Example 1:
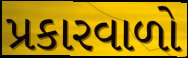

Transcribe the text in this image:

પ્રકારવાળો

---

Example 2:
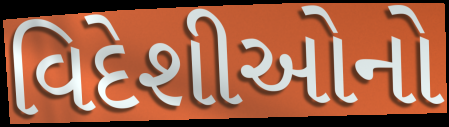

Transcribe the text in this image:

વિદેશીઓનો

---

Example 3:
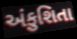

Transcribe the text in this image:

અંકુશિતા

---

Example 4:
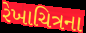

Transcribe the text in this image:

રેખાચિત્રના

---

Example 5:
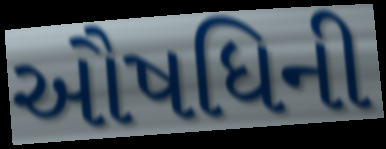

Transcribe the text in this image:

ઔષધિની